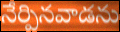
నేర్పినవాడను